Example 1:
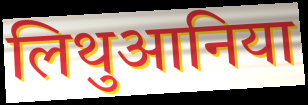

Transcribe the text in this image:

लिथुआनिया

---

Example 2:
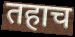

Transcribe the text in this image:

तहाच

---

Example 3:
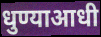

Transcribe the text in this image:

धुण्याआधी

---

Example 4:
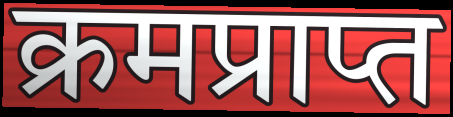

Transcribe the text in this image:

क्रमप्राप्त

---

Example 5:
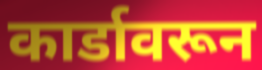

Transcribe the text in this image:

कार्डावरून